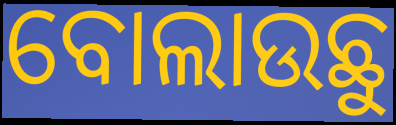
ବୋଲାଉଛୁ